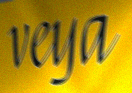
veya